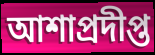
আশাপ্রদীপ্ত